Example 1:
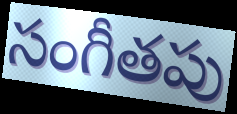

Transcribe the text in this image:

సంగీతపు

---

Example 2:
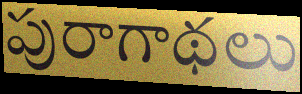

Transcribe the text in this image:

పురాగాథలు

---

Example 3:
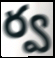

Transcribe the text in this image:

ర్వ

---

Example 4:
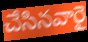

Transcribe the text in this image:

చేసినవారై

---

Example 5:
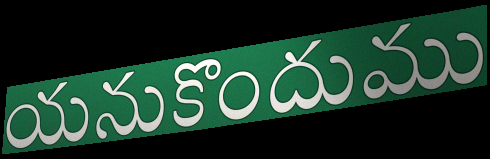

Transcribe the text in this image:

యనుకొందుము